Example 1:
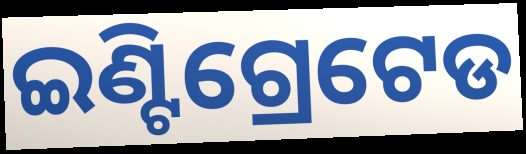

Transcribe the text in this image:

ଇଣ୍ଟିଗ୍ରେଟେଡ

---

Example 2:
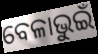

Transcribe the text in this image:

ବେଳାଭୁଇଁ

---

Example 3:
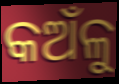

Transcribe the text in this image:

କଅଁଳୁ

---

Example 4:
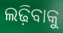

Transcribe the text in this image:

ଲଢ଼ିବାକୁ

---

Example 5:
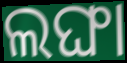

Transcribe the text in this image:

ଲଙ୍ଘା